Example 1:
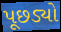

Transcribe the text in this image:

પૂછડ્યો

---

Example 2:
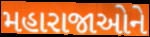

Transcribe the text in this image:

મહારાજાઓને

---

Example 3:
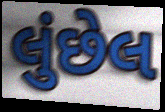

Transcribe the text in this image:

લુંછેલ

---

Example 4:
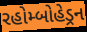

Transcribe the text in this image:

રહોમ્બોહેડ્રન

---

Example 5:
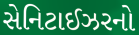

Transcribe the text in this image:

સેનિટાઈઝરનો